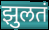
झुलतं